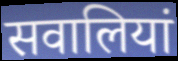
सवालियां